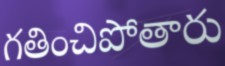
గతించిపోతారు